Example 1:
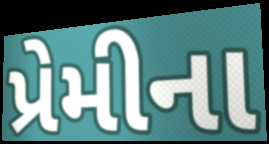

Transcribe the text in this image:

પ્રેમીના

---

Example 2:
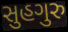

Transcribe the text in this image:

સુહગુરુ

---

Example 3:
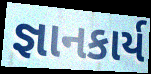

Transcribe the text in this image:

જ્ઞાનકાર્ય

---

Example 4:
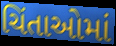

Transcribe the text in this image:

ચિંતાઓમાં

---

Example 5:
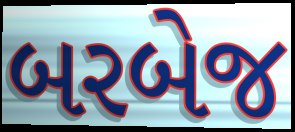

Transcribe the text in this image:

બરબેજ